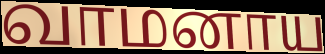
வாமனாய